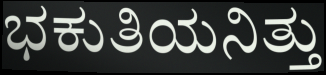
ಭಕುತಿಯನಿತ್ತು